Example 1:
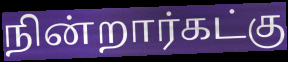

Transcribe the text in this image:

நின்றார்கட்கு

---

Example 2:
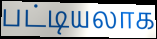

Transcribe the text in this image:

பட்டியலாக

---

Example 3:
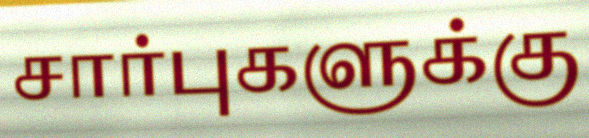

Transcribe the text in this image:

சார்புகளுக்கு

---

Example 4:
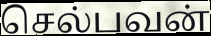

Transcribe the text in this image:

செல்பவன்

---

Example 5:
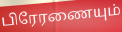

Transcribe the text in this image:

பிரேரணையும்